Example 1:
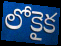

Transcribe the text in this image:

లోకైక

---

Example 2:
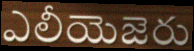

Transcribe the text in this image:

ఎలీయెజెరు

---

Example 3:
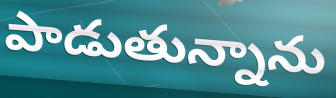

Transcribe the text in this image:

పాడుతున్నాను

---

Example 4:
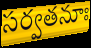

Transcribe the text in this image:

సర్వతనూః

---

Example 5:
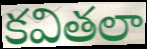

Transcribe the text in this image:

కవితలా